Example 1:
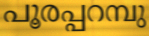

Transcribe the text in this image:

പൂരപ്പറമ്പു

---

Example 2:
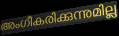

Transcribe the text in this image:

അംഗീകരിക്കുന്നുമില്ല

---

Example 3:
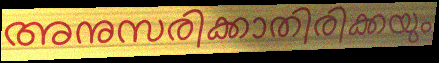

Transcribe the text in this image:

അനുസരിക്കാതിരിക്കയും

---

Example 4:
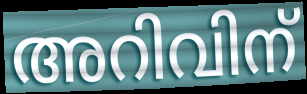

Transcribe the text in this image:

അറിവിന്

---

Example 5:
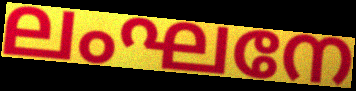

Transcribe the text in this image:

ലംഘനേ